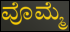
ವೊಮ್ಮೆ